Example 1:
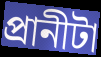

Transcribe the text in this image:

প্রানীটা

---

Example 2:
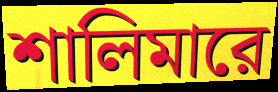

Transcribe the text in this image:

শালিমারে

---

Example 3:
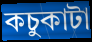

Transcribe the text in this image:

কচুকাটা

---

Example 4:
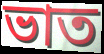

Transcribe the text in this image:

ভাত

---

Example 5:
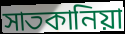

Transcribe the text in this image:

সাতকানিয়া